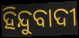
ହିନ୍ଦୁବାଦୀ